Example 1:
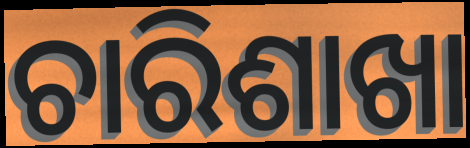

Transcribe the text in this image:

ଚାରିଶାଖା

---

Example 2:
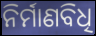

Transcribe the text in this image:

ନିର୍ମାଣବିଧି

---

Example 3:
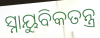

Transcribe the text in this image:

ସ୍ନାୟୁବିକତନ୍ତ୍ର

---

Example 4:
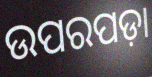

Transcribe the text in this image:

ଉପରପଡ଼ା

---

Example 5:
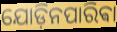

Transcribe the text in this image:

ଯୋଡ଼ିନପାରିଵା